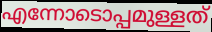
എന്നോടൊപ്പമുള്ളത്